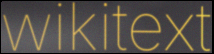
wikitext